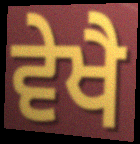
ਵੇਖੈ